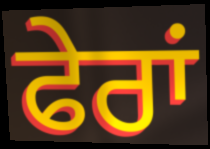
ਫੇਰਾਂ